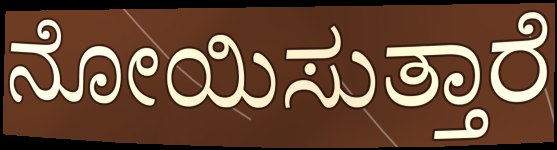
ನೋಯಿಸುತ್ತಾರೆ